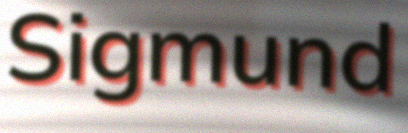
Sigmund